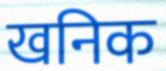
खनिक